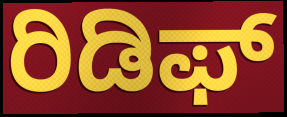
ರಿಡಿಫ್